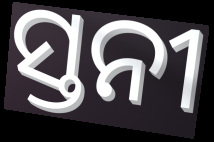
ସ୍ତନୀ